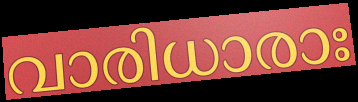
വാരിധാരാഃ